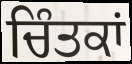
ਚਿੰਤਕਾਂ